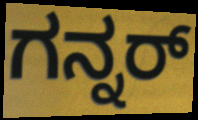
ಗನ್ನರ್